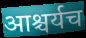
आश्चर्यच